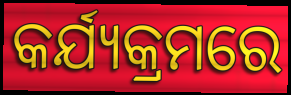
କର୍ଯ୍ୟକ୍ରମରେ